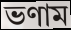
ভণাম